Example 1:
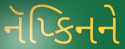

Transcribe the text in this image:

નૅપ્કિનને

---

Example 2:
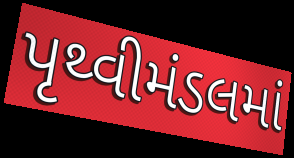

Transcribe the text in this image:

પૃથ્વીમંડલમાં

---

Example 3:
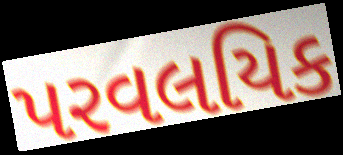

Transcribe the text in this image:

પરવલયિક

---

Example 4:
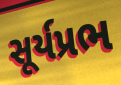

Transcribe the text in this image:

સૂર્યપ્રભ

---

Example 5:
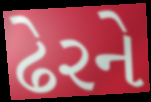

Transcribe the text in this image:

ઢેરને